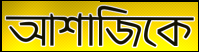
আশাজিকে